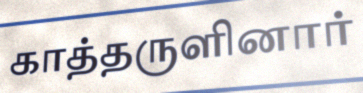
காத்தருளினார்